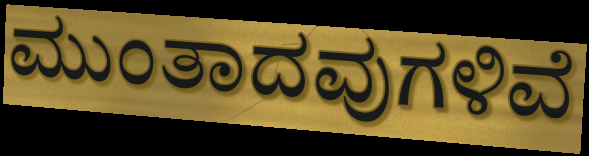
ಮುಂತಾದವುಗಳಿವೆ